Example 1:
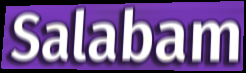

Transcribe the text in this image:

Salabam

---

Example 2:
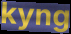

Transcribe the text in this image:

kyng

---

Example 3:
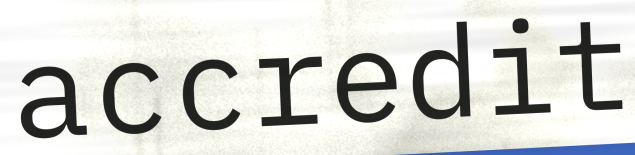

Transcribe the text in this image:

accredit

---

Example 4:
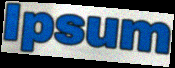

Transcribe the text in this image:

Ipsum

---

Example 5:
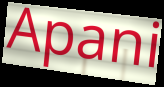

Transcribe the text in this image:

Apani